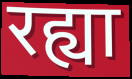
रह्या